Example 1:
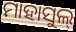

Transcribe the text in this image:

ମାହାସୁଲ୍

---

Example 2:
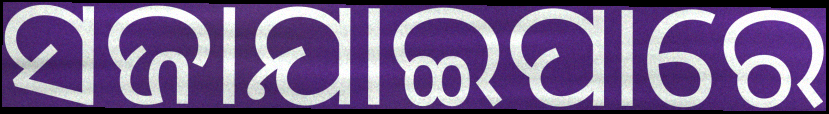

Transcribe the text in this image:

ସଜାଯାଇପାରେ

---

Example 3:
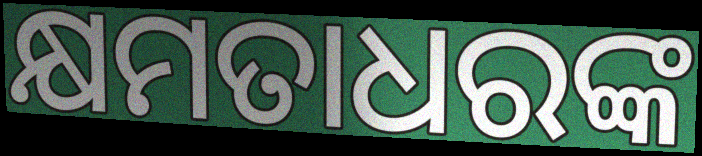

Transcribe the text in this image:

କ୍ଷମତାଧରଙ୍କ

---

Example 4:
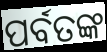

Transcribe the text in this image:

ପର୍ବତଙ୍କ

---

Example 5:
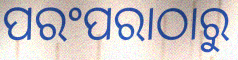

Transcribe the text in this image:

ପରଂପରାଠାରୁ